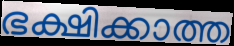
ഭക്ഷിക്കാത്ത